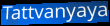
Tattvanyaya